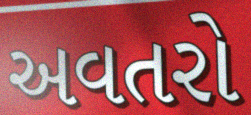
અવતરો